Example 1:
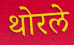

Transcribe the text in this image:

थोरले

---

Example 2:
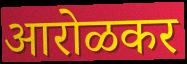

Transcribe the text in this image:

आरोळकर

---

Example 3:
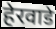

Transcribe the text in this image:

हेरवाडे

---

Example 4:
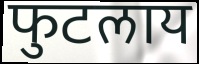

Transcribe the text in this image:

फुटलाय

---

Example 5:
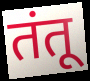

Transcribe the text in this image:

तंतू